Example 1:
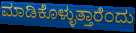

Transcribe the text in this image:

ಮಾಡಿಕೊಳ್ಳುತ್ತಾರೆಂದು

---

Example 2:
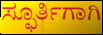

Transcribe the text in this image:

ಸ್ಫೂರ್ತಿಗಾಗಿ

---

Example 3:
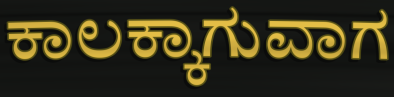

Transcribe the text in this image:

ಕಾಲಕ್ಕಾಗುವಾಗ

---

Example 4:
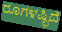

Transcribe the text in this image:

ರೂಗಳಷ್ಟಿದೆ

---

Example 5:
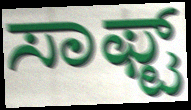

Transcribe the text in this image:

ಸಾಫ್ಟ್